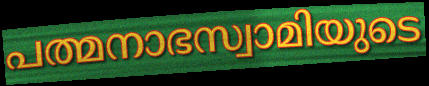
പത്മനാഭസ്വാമിയുടെ